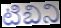
టిబిని